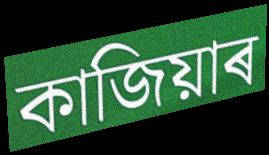
কাজিয়াৰ